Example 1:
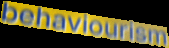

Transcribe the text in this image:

behaviourism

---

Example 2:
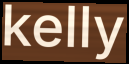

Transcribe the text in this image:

kelly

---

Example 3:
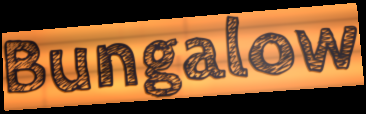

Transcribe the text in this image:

Bungalow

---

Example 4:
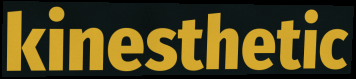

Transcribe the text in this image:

kinesthetic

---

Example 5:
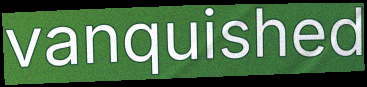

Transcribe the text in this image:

vanquished